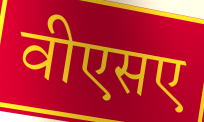
वीएसए